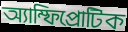
অ্যাম্ফিপ্রোটিক